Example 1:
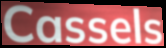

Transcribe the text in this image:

Cassels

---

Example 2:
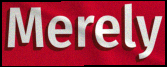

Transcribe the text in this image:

Merely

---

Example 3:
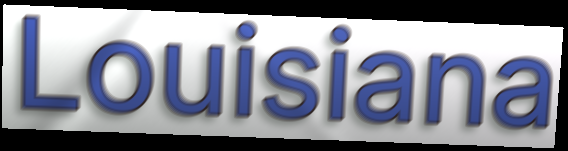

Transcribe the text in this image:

Louisiana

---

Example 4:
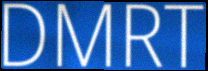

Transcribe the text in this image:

DMRT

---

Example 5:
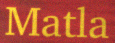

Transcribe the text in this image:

Matla